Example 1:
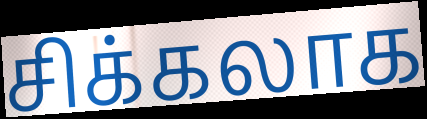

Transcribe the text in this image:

சிக்கலாக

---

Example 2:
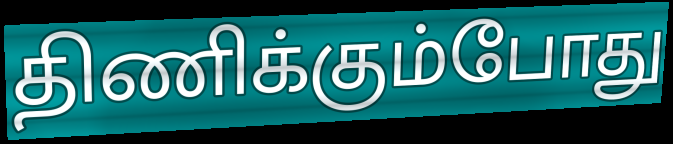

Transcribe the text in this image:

திணிக்கும்போது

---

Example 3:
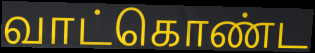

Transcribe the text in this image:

வாட்கொண்ட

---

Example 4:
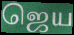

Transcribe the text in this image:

ஜெய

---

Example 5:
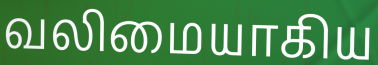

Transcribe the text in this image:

வலிமையாகிய